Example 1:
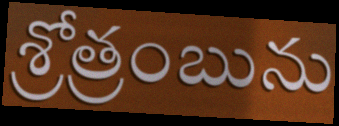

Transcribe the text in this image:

శ్రోత్రంబును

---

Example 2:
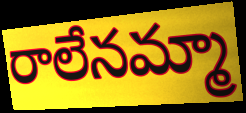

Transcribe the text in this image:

రాలేనమ్మా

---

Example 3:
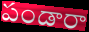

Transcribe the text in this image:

పండారా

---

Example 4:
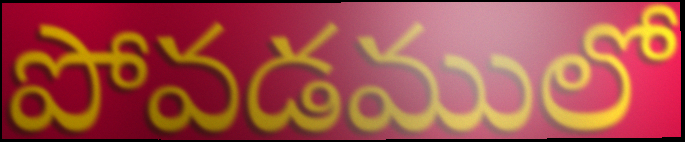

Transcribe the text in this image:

పోవడములో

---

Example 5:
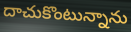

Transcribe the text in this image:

దాచుకొంటున్నాను